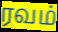
ரவம்